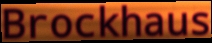
Brockhaus